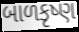
બાળકૃષ્ણ